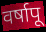
वर्षापू